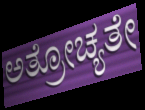
ಅತ್ರೋಚ್ಯತೇ